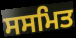
ਸਸਮਿਤ